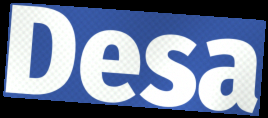
Desa